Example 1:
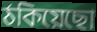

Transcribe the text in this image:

ঠকিয়েছো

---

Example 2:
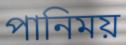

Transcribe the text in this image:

পানিময়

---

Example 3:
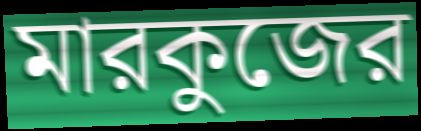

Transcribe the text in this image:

মারকুজের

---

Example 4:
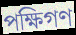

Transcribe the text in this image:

পক্ষিগণ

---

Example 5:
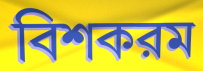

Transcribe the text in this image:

বিশকরম